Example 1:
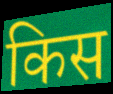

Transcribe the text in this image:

किस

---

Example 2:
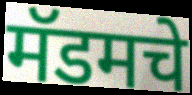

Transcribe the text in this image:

मॅडमचे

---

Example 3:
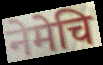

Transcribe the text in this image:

नेमेचि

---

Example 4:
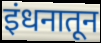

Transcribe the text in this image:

इंधनातून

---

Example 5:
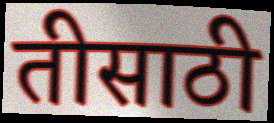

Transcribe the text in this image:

तीसाठी